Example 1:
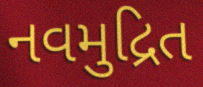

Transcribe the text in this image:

નવમુદ્રિત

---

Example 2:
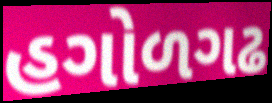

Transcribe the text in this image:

હગોળગઢ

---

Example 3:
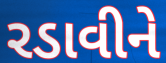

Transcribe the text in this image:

રડાવીને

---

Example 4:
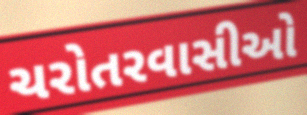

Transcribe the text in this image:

ચરોતરવાસીઓ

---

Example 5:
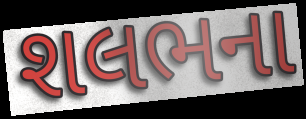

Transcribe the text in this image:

શલભના